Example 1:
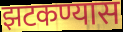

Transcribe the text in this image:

झटकण्यास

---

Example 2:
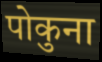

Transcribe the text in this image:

पोकुना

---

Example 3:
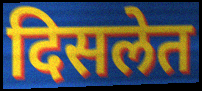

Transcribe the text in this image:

दिसलेत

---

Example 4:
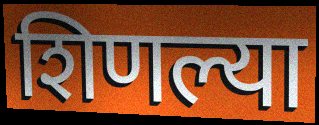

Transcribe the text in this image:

शिणल्या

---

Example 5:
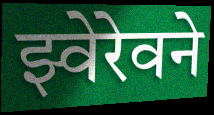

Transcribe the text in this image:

झ्वेरेवने